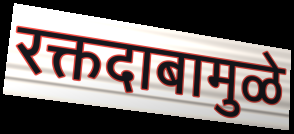
रक्तदाबामुळे